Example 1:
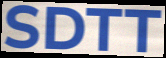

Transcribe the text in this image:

SDTT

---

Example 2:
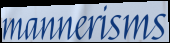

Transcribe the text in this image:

mannerisms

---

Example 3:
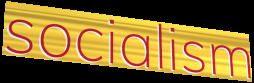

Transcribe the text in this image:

socialism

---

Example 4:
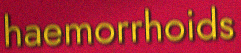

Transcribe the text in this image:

haemorrhoids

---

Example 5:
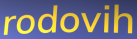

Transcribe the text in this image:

rodovih